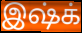
இஷ்க்